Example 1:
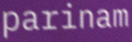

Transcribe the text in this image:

parinam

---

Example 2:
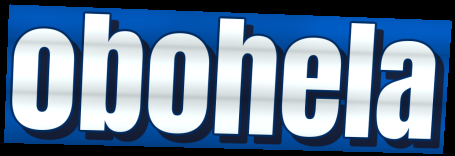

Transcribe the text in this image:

obohela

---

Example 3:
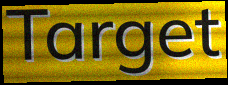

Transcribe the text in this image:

Target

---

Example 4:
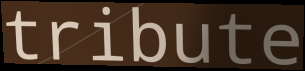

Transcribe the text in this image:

tribute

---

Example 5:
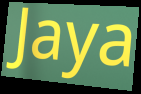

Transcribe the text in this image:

Jaya